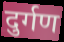
दुर्गण